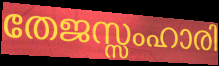
തേജസ്സംഹാരി